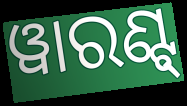
ୱାରଣ୍ଟ୍